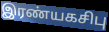
இரண்யகசிபு